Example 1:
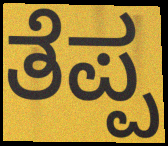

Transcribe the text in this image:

ತೆಪ್ಪ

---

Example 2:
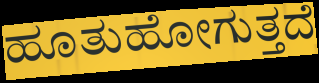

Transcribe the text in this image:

ಹೂತುಹೋಗುತ್ತದೆ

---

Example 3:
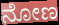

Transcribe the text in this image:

ನೋಣ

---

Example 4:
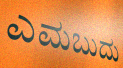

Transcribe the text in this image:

ಎಮಬುದು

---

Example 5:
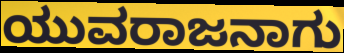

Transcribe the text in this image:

ಯುವರಾಜನಾಗು